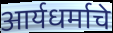
आर्यधर्माचे